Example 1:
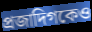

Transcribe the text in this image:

প্রজাদিগকেও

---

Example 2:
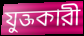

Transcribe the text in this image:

যুক্তকারী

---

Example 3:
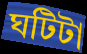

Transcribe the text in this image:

ঘটিটা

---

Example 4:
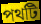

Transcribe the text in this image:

পথটি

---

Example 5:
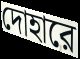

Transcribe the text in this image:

দোহারে